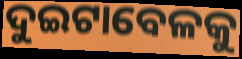
ଦୁଇଟାବେଳକୁ